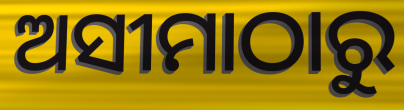
ଅସୀମାଠାରୁ